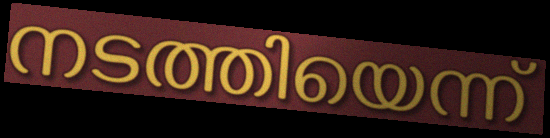
നടത്തിയെന്ന്